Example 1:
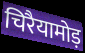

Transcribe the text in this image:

चिरैयामोड़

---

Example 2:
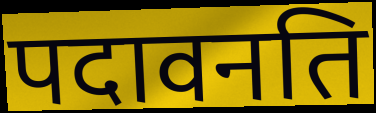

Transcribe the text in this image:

पदावनति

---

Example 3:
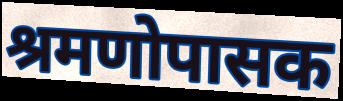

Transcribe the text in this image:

श्रमणोपासक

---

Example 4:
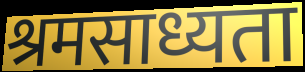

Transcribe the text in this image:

श्रमसाध्यता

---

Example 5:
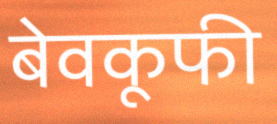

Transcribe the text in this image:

बेवकूफी